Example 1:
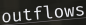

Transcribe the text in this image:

outflows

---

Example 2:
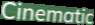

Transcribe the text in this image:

Cinematic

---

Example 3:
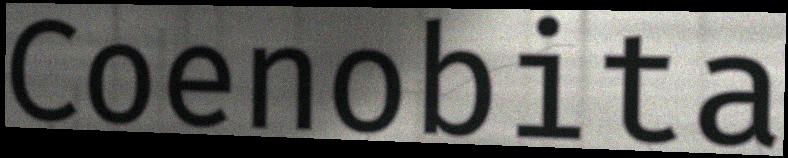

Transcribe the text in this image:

Coenobita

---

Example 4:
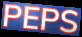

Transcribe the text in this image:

PEPS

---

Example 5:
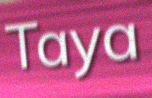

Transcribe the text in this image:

Taya